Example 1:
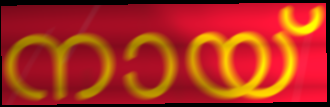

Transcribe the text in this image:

നായ്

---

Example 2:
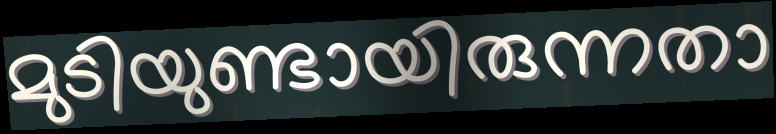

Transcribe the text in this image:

മുടിയുണ്ടായിരുന്നതാ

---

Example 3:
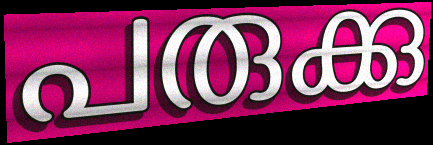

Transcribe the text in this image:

പരുക്കു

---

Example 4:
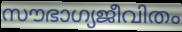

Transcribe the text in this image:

സൗഭാഗ്യജീവിതം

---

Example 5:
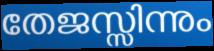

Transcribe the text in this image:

തേജസ്സിന്നും